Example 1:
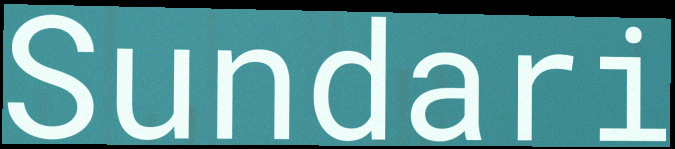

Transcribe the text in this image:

Sundari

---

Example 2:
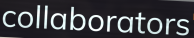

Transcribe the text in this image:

collaborators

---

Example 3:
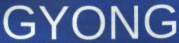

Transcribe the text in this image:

GYONG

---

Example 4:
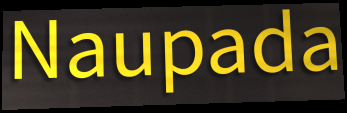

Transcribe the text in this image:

Naupada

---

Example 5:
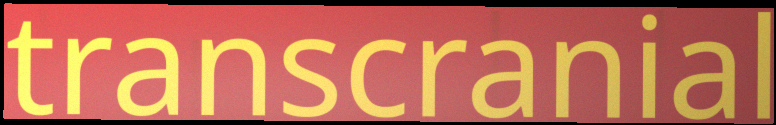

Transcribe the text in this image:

transcranial